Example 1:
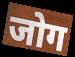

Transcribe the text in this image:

जोग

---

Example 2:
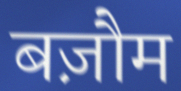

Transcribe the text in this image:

बज़ौम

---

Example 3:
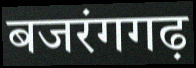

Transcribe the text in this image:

बजरंगगढ़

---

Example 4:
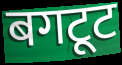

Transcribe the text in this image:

बगटूट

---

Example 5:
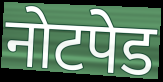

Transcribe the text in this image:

नोटपेड